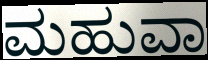
ಮಹುವಾ